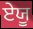
ਏਯੂ